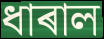
ধাৰাল